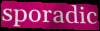
sporadic